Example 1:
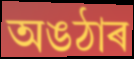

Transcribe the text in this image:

অঙঠাৰ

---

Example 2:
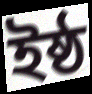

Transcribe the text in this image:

ইষ্ঠ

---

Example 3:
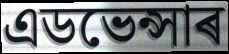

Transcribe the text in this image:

এডভেন্সাৰ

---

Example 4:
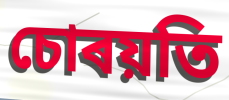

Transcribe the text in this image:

চোৰয়তি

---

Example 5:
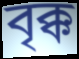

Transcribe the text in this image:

বৃক্ক